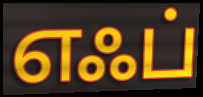
எஃப்